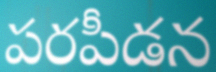
పరపీడన